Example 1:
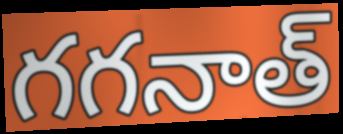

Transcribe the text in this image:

గగనాత్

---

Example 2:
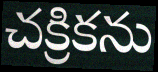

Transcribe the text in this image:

చక్రికను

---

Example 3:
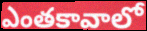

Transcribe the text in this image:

ఎంతకావాలో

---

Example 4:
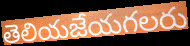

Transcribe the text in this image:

తెలియజేయగలరు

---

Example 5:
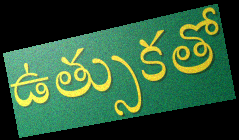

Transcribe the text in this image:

ఉత్సుకతో